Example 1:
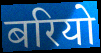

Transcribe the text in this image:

बरियो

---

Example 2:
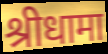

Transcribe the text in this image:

श्रीधामा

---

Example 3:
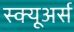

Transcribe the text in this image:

स्क्यूअर्स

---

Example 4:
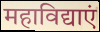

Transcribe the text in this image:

महाविद्याएं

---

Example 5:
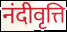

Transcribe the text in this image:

नंदीवृत्ति